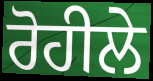
ਰੋਹੀਲੇ